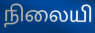
நிலையி